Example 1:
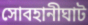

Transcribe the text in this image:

সোবহানীঘাট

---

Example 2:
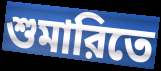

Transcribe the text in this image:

শুমারিতে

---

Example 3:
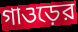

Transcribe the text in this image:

গাওড়ের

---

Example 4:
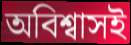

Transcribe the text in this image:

অবিশ্বাসই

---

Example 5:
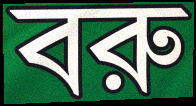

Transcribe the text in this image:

বরু